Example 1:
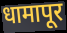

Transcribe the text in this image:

धामापूर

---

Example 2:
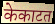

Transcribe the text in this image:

केकाटत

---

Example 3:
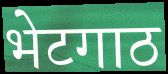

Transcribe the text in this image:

भेटगाठ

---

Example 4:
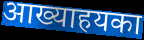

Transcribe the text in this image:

आख्याहयका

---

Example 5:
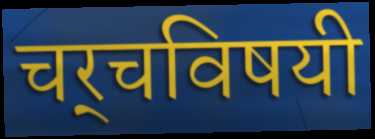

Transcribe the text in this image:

चर्चविषयी